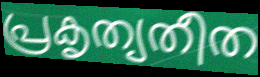
പ്രകൃത്യതീത